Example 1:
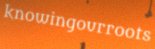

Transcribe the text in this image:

knowingourroots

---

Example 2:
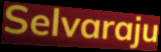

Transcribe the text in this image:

Selvaraju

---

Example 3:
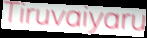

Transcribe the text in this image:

Tiruvaiyaru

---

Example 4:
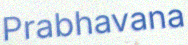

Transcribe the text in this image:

Prabhavana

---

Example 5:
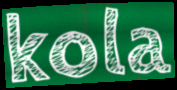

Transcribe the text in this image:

kola